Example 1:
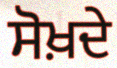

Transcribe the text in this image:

ਸੋਖ਼ਦੇ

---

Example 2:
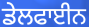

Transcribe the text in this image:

ਡੇਲਫਾਈਨ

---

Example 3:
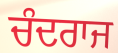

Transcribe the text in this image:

ਚੰਦਰਾਜ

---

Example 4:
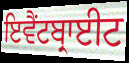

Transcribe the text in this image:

ਇਵੈਂਟਬ੍ਰਾਈਟ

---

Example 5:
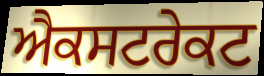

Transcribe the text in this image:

ਐਕਸਟਰੇਕਟ